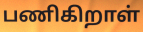
பணிகிறாள்